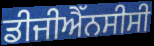
ਡੀਜੀਐੱਨਸੀਸੀ